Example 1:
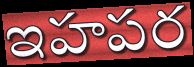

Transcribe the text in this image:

ఇహపర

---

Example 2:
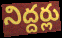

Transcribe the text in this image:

నిద్దర్లు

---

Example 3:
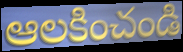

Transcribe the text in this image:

ఆలకించండి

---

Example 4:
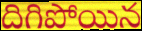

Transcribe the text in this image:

దిగిపోయిన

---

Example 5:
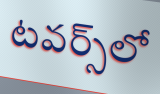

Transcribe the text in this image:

టవర్స్‌లో